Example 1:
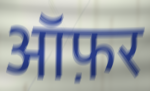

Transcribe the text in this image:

ऑफ़र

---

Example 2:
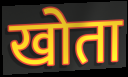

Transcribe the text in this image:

खोता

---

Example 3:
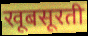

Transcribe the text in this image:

खूबसूरती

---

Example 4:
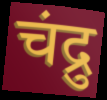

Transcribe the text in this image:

चंद्रु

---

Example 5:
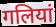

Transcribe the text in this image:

गलियां